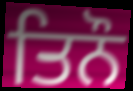
ਤਿਨੌ